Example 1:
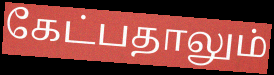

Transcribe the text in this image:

கேட்பதாலும்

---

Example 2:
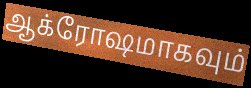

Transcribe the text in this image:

ஆக்ரோஷமாகவும்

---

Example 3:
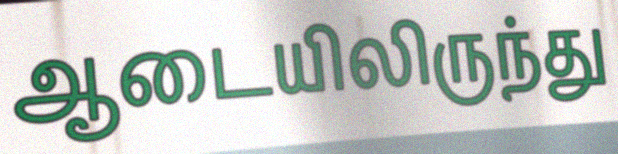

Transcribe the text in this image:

ஆடையிலிருந்து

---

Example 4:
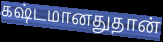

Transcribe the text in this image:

கஷ்டமானதுதான்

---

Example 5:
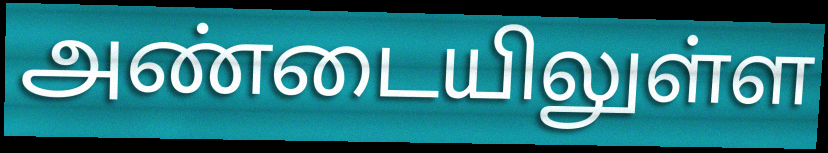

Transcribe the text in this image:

அண்டையிலுள்ள